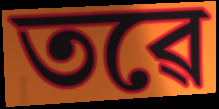
তৱে